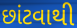
છાંટવાથી